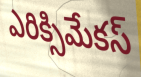
ఎరిక్సిమేకస్